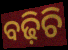
ବଢ଼ିଚି